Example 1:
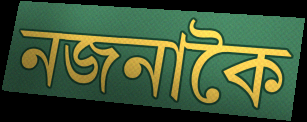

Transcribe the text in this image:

নজনাকৈ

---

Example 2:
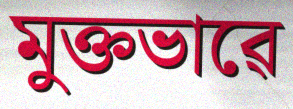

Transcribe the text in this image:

মুক্তভাৱে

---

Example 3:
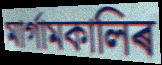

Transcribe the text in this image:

মাৰ্গামকালিৰ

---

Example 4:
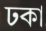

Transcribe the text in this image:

ঢকা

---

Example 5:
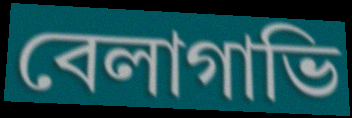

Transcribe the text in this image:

বেলাগাভি